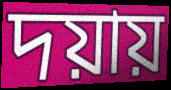
দয়ায়